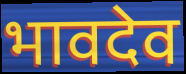
भावदेव